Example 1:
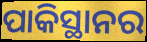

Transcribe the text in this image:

ପାକିସ୍ଥାନର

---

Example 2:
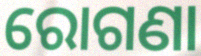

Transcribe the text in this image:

ରୋଗଣା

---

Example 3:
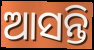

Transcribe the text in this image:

ଆସନ୍ତି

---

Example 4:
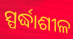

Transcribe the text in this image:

ସ୍ପର୍ଦ୍ଧାଶୀଳ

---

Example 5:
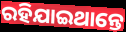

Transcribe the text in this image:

ରହିଯାଇଥାନ୍ତେ